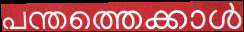
പന്തത്തെക്കാൾ